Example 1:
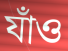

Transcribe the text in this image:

যাঁও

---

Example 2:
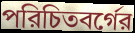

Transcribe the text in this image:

পরিচিতবর্গের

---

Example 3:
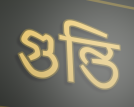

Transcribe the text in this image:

গুন্তি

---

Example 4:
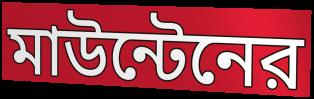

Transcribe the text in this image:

মাউন্টেনের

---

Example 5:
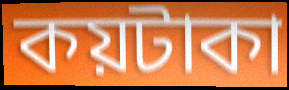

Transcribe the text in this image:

কয়টাকা